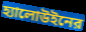
হ্যালোউইনের